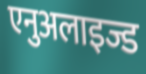
एनुअलाइज्ड